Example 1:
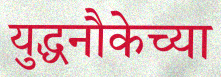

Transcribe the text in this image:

युद्धनौकेच्या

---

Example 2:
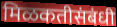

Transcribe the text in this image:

मिळकतीसंबंधी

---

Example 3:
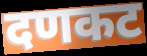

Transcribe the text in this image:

दणकट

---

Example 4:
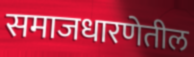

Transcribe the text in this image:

समाजधारणेतील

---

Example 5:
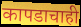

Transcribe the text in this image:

कापडाचाही